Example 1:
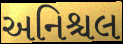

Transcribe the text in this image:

અનિશ્ચલ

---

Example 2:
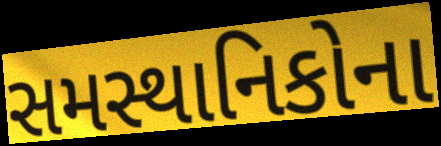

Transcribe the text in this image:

સમસ્થાનિકોના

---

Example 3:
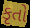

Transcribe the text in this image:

કૃતો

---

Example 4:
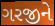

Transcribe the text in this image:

ગરજીને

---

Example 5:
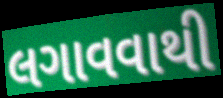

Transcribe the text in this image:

લગાવવાથી